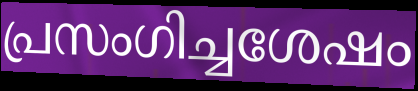
പ്രസംഗിച്ചശേഷം